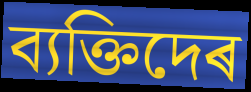
ব্যক্তিদেৰ